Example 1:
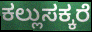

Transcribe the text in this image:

ಕಲ್ಲುಸಕ್ಕರೆ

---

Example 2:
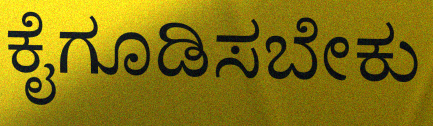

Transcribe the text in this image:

ಕೈಗೂಡಿಸಬೇಕು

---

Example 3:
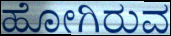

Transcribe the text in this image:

ಹೋಗಿರುವ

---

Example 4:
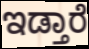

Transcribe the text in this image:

ಇಡ್ತಾರೆ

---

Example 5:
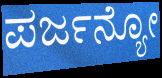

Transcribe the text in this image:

ಪರ್ಜನ್ಯೋ